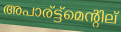
അപാര്ട്ട്മെന്റില്